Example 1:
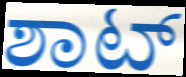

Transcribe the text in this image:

ಶಾಟ್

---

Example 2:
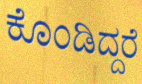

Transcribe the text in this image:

ಕೊಂಡಿದ್ದರೆ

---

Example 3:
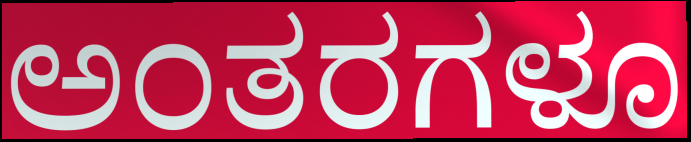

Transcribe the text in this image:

ಅಂತರಗಳೂ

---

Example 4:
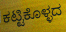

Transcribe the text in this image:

ಕಟ್ಟಿಕೊಳ್ಳದ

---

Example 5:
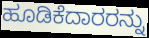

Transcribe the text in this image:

ಹೂಡಿಕೆದಾರರನ್ನು